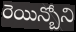
రెయిన్బోని